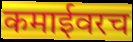
कमाईवरच